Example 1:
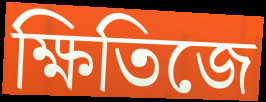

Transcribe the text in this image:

ক্ষিতিজে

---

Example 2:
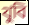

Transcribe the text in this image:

থুবি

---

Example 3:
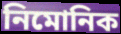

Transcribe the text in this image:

নিমোনিক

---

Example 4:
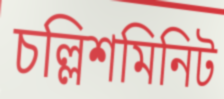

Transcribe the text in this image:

চল্লিশমিনিট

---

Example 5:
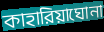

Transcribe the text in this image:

কাহারিয়াঘোনা